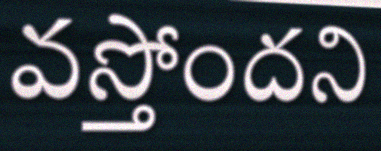
వస్తోందని